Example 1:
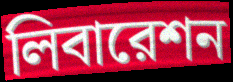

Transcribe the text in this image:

লিবারেশন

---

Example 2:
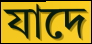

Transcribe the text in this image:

যাদে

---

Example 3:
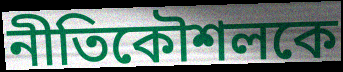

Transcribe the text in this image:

নীতিকৌশলকে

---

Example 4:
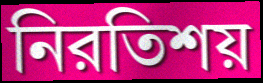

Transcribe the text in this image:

নিরতিশয়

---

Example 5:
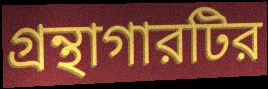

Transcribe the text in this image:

গ্রন্থাগারটির